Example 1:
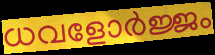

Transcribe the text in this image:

ധവളോർജ്ജം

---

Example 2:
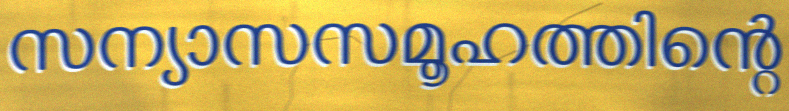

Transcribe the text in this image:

സന്യാസസമൂഹത്തിന്റെ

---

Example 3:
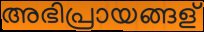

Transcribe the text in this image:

അഭിപ്രായങ്ങള്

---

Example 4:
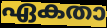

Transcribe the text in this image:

ഏകതാ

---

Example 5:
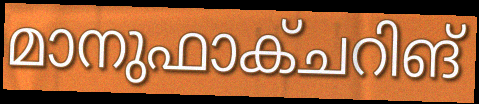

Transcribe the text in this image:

മാനുഫാക്ചറിങ്